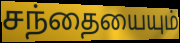
சந்தையையும்